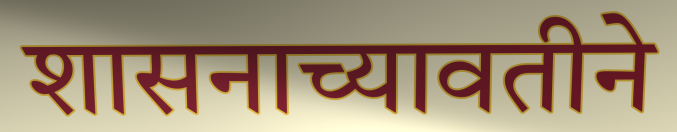
शासनाच्यावतीने